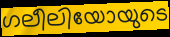
ഗലീലിയോയുടെ